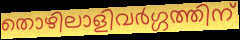
തൊഴിലാളിവർഗ്ഗത്തിന്